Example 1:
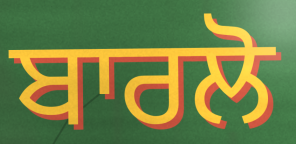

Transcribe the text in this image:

ਬਾਰਲੋ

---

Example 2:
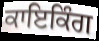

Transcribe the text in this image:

ਕਾਇਕਿੰਗ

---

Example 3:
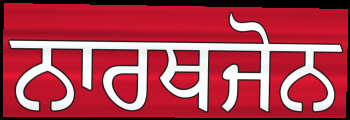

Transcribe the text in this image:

ਨਾਰਥਜੋਨ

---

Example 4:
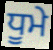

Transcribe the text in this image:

ਧੂਮੇ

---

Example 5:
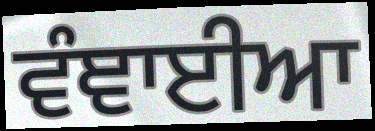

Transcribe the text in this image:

ਵੰਞਾਈਆ